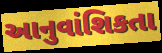
આનુવાંશિકતા